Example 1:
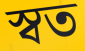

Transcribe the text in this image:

স্বত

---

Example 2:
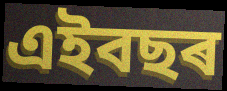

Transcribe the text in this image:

এইবছৰ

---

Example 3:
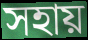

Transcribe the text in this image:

সহায়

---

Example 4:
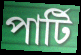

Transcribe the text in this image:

পাৰ্টি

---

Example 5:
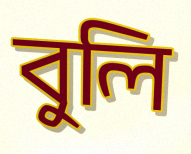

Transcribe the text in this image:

বুলি